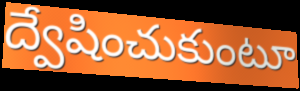
ద్వేషించుకుంటూ